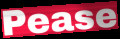
Pease